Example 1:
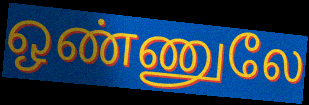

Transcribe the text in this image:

ஒண்ணுலே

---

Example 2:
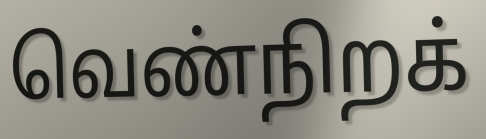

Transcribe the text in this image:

வெண்நிறக்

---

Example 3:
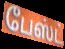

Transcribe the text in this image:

பேஸ்ட்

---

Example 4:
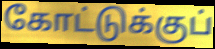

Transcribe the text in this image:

கோட்டுக்குப்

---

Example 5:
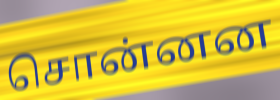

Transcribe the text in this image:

சொன்னன